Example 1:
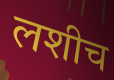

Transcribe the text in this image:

लशीच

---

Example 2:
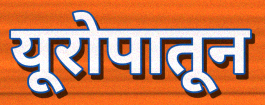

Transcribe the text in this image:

यूरोपातून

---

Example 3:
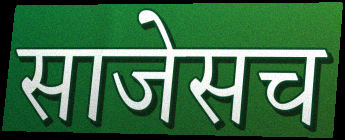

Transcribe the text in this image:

साजेसच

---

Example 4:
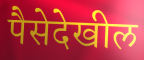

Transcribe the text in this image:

पैसेदेखील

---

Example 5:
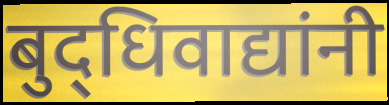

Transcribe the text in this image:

बुद्धिवाद्यांनी